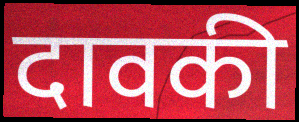
दावकी